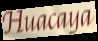
Huacaya